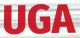
UGA